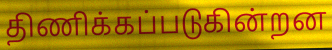
திணிக்கப்படுகின்றன